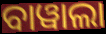
ବାୱାଲା